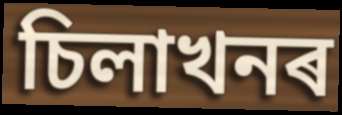
চিলাখনৰ